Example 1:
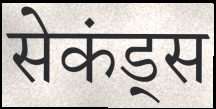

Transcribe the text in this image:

सेकंड्स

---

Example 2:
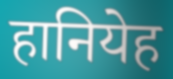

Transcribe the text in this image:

हानियेह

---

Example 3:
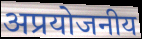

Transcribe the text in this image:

अप्रयोजनीय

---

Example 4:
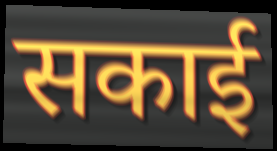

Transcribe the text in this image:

सकाई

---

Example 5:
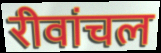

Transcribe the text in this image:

रीवांचल